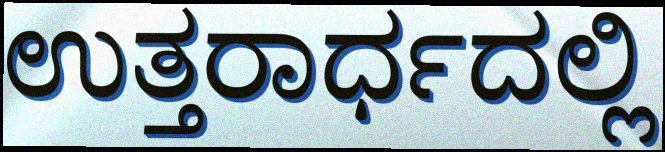
ಉತ್ತರಾರ್ಧದಲ್ಲಿ